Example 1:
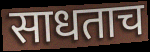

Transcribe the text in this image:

साधताच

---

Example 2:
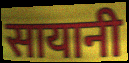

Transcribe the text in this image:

सायानी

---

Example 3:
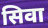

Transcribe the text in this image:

सिवा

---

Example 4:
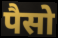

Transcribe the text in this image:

पैसो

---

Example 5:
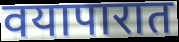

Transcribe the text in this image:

वयापारात